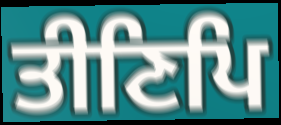
ਤੀਣਿਪਿ